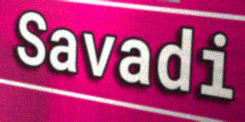
Savadi